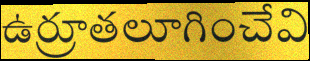
ఉర్రూతలూగించేవి